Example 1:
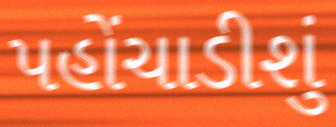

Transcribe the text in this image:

પહોંચાડીશું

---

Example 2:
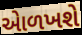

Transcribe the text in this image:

એાળખશે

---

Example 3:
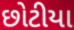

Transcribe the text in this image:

છોટીયા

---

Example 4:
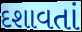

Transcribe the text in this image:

દશાવતાં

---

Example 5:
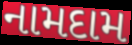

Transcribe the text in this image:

નામદામ